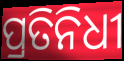
ପ୍ରତିନିଧୀ